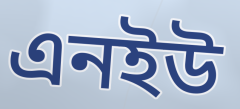
এনইউ